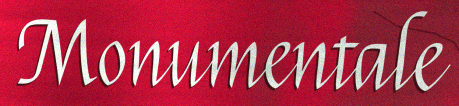
Monumentale